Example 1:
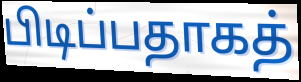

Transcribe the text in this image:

பிடிப்பதாகத்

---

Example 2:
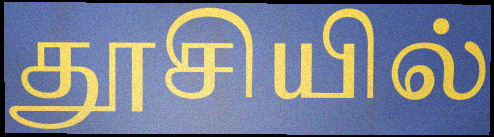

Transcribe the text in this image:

தூசியில்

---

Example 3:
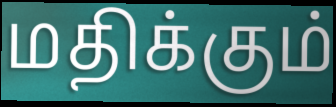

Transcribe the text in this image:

மதிக்கும்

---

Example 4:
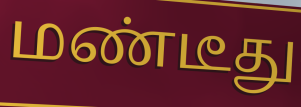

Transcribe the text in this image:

மண்டீது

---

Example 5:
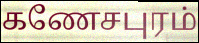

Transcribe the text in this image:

கணேசபுரம்